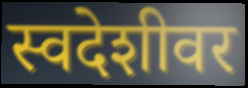
स्वदेशीवर